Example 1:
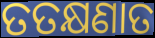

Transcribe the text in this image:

ତତକ୍ଷଣାତ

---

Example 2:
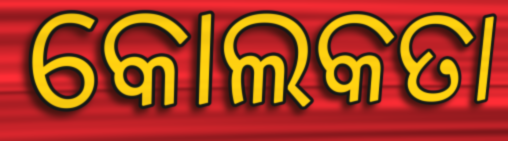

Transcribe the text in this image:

କୋଲକତା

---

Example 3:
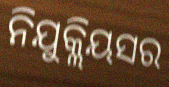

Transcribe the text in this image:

ନିଯୁକ୍ଲିୟସର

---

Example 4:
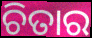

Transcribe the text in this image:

ଚିତାର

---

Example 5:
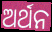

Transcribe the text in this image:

ଅର୍ଥନ